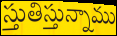
స్తుతిస్తున్నాము